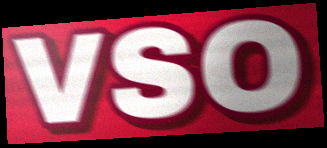
VSO